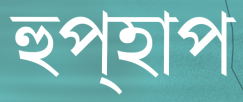
হুপ্হাপ